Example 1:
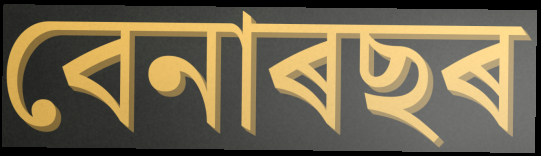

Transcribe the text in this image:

বেনাৰছৰ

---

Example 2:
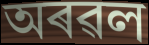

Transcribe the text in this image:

অৰৱল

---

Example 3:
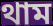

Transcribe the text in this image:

থাম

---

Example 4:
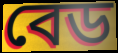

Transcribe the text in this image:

বেড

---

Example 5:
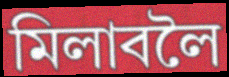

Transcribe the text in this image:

মিলাবলৈ